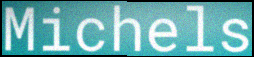
Michels